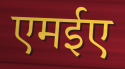
एमईए